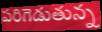
పరిగెడుతున్న